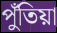
পুঁতিয়া